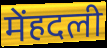
मेंहदली